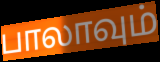
பாலாவும்